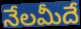
నేలమీదే